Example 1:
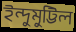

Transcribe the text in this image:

ইন্দুমুট্টিল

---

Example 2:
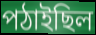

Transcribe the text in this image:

পঠাইছিল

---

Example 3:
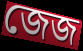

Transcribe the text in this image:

জেজ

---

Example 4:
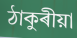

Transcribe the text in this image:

ঠাকুৰীয়া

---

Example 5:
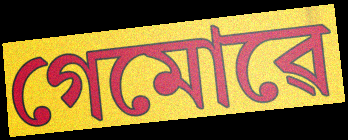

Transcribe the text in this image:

গেমোৱে